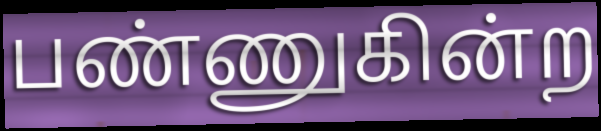
பண்ணுகின்ற